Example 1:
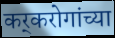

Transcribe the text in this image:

कर्करोगांच्या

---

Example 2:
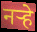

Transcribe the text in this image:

नऱ्हे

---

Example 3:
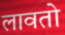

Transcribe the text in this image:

लावतो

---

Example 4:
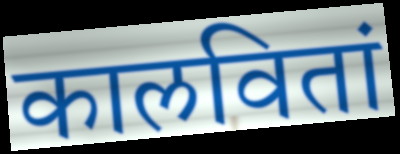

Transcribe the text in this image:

कालवितां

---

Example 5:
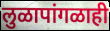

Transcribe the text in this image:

लुळापांगळाही